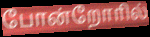
போன்றோரில்